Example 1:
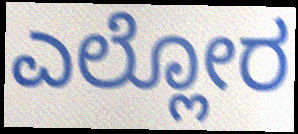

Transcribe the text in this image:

ಎಲ್ಲೋರ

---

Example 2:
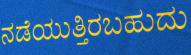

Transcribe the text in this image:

ನಡೆಯುತ್ತಿರಬಹುದು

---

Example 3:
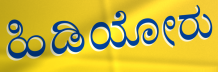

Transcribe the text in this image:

ಹಿಡಿಯೋರು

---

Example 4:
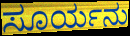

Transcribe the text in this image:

ಸೂರ್ಯನು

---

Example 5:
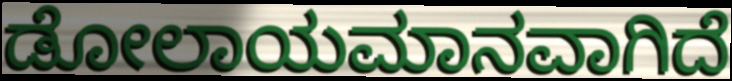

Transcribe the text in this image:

ಡೋಲಾಯಮಾನವಾಗಿದೆ